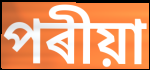
পৰীয়া